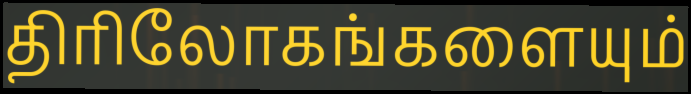
திரிலோகங்களையும்